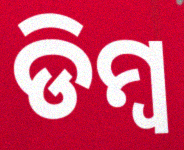
ଡିମ୍ଵ